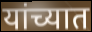
यांच्यात